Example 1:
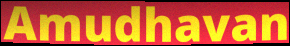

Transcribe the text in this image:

Amudhavan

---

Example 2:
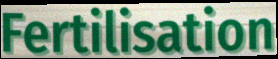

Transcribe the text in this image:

Fertilisation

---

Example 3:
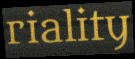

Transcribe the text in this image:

riality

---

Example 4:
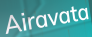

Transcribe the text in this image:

Airavata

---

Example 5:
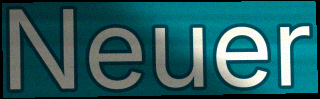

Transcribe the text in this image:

Neuer